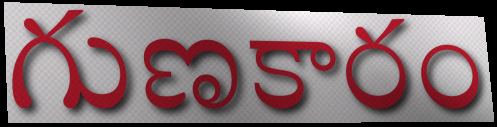
గుణకారం